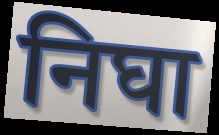
निघा